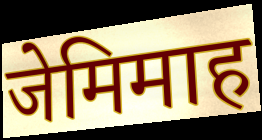
जेमिमाह